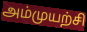
அம்முயற்சி